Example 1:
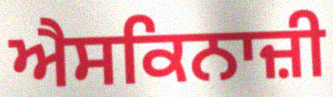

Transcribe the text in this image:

ਐਸਕਿਨਾਜ਼ੀ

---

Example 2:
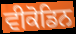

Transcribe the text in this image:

ਵੀਕੋਡਿਨ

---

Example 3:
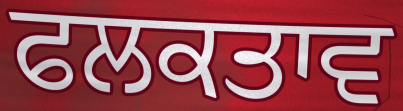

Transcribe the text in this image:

ਫਲਕਤਾਵ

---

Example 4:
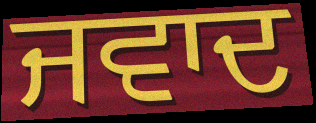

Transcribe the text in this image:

ਜਵਾਦ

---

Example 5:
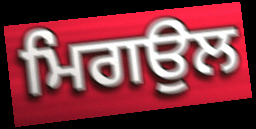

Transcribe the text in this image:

ਮਿਗਉਲ